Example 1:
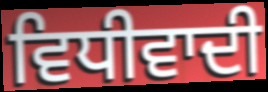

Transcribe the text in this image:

ਵਿਧੀਵਾਦੀ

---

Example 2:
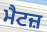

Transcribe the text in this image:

ਮੈਟਜ਼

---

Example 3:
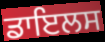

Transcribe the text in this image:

ਡਾਇਲਸ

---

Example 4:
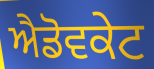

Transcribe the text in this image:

ਐਡੋਵਕੇਟ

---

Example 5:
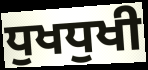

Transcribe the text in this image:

ਧੁਖਧੁਖੀ